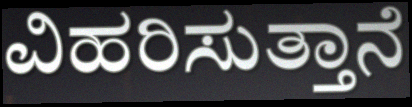
ವಿಹರಿಸುತ್ತಾನೆ